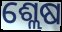
ଶ୍ଲେଷ